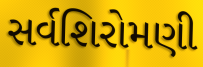
સર્વશિરોમણી